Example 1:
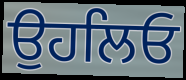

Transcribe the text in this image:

ਉਹਲਿਓ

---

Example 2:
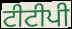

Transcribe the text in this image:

ਟੀਟੀਪੀ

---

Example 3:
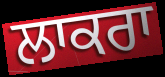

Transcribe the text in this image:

ਲਾਕਰਾ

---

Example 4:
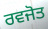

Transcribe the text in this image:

ਰਵਜੋਤ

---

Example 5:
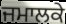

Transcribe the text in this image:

ਜਮਾਲਕੇ